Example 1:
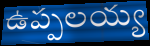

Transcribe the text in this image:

ఉప్పలయ్య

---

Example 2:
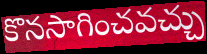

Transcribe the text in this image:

కొనసాగించవచ్చు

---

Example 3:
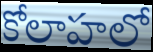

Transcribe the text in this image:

కోలాహలో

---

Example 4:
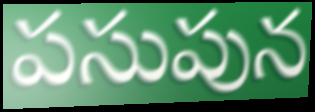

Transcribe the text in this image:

పసుపున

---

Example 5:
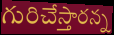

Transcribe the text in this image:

గురిచేస్తారన్న